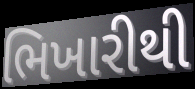
ભિખારીથી